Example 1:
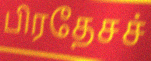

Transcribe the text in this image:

பிரதேசச்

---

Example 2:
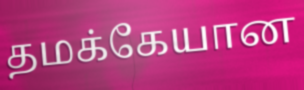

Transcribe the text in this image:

தமக்கேயான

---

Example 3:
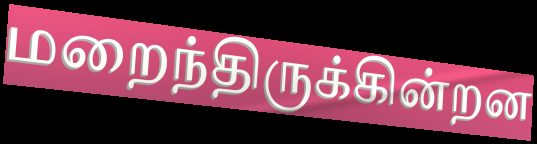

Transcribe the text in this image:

மறைந்திருக்கின்றன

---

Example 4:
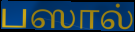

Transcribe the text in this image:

பஸால்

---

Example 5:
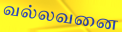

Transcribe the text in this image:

வல்லவனை